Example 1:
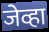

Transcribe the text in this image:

जेव्हा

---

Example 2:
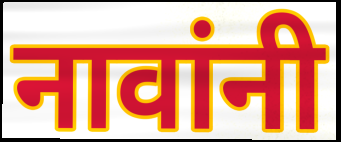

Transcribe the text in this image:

नावांनी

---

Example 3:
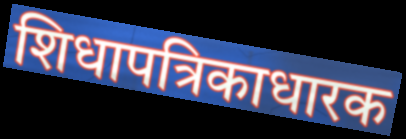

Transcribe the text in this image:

शिधापत्रिकाधारक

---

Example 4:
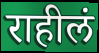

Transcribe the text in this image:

राहीलं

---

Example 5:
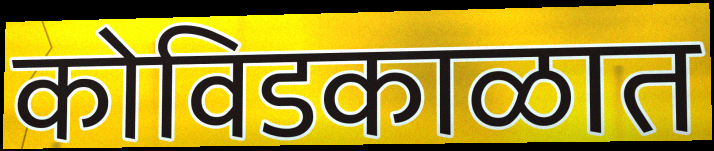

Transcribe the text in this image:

कोविडकाळात